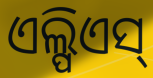
ଏଲ୍ପିଏସ୍